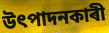
উৎপাদনকাৰী